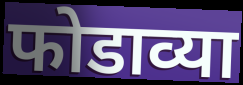
फोडाव्या